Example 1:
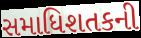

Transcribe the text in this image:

સમાધિશતકની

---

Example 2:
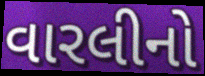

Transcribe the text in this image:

વારલીનો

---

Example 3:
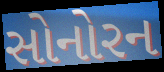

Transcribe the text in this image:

સોનોરન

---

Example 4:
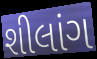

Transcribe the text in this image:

શીલાંગ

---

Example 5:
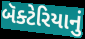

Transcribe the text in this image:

બૅક્ટેરિયાનું